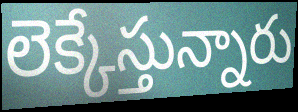
లెక్కేస్తున్నారు